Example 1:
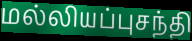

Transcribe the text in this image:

மல்லியப்புசந்தி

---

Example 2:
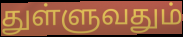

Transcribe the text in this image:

துள்ளுவதும்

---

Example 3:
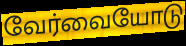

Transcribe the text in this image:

வேர்வையோடு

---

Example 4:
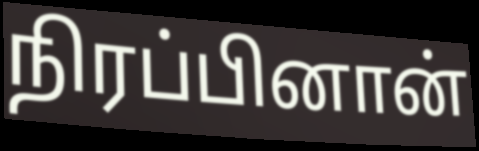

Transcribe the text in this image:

நிரப்பினான்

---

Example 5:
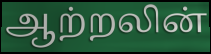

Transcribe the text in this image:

ஆற்றலின்